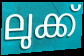
ലുക്ക്